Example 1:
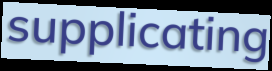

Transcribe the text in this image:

supplicating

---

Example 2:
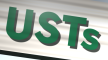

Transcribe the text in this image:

USTs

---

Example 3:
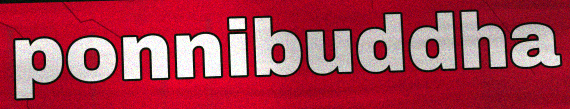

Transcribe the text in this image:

ponnibuddha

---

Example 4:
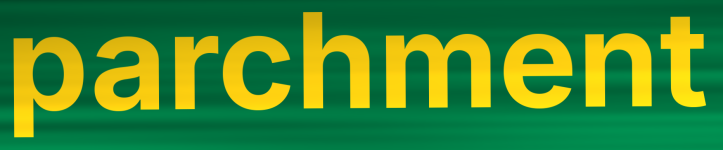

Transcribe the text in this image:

parchment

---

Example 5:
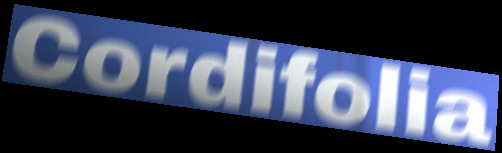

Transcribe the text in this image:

Cordifolia